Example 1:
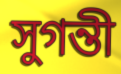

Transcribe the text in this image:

সুগন্তী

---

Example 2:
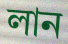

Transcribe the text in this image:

লান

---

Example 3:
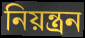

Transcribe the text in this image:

নিয়ন্ত্ৰন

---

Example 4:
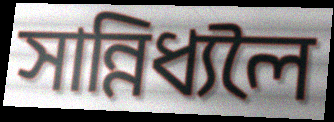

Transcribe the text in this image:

সান্নিধ্যলৈ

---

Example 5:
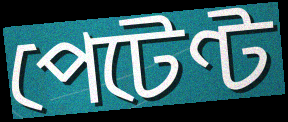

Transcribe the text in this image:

পেটেণ্ট